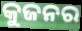
କୁଜନର